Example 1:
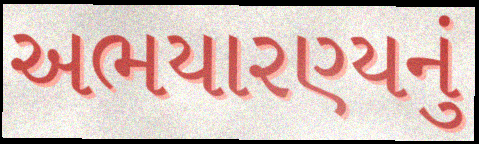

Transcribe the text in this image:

અભયારણ્યનું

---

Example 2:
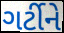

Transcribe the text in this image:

ગર્ટીને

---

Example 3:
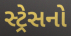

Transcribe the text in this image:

સ્ટ્રેસનો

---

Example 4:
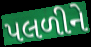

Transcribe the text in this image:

પલળીને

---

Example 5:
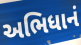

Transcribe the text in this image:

અભિધાનં